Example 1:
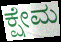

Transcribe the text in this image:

ಕ್ಷೇಮ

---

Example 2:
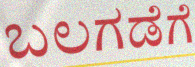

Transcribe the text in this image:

ಬಲಗಡೆಗೆ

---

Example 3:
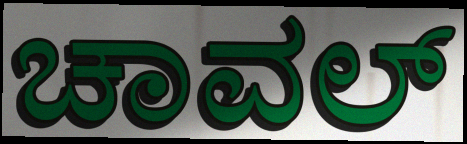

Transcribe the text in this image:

ಚಾವಲ್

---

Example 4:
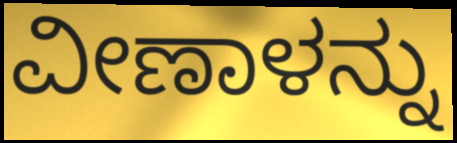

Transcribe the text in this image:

ವೀಣಾಳನ್ನು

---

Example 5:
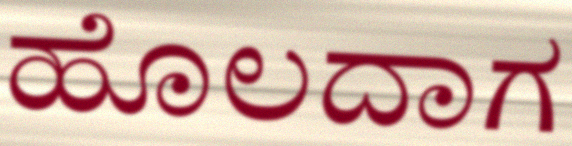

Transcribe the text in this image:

ಹೊಲದಾಗ